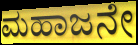
ಮಹಾಜನೇ